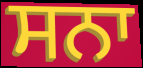
ਸਨਾ